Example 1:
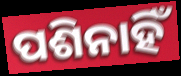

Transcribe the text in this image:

ପଶିନାହିଁ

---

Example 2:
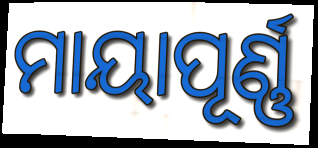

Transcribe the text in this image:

ମାୟାପୂର୍ଣ୍ଣ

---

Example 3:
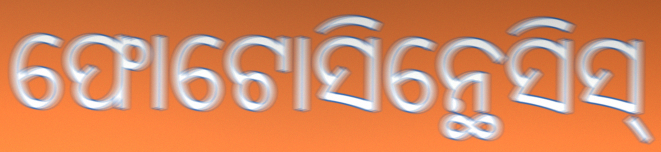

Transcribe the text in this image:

ଫୋଟୋସିନ୍ଥେସିସ୍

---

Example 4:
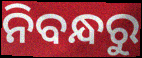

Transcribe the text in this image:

ନିବନ୍ଧରୁ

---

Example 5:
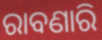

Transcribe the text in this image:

ରାବଣାରି